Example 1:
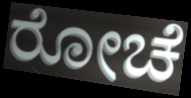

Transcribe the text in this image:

ರೋಚೆ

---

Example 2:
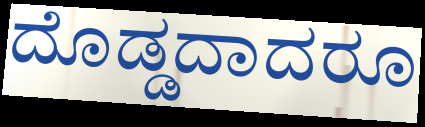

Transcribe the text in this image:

ದೊಡ್ಡದಾದರೂ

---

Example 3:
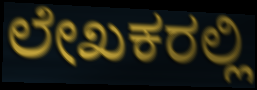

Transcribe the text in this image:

ಲೇಖಕರಲ್ಲಿ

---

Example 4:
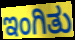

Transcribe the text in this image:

ಇಂಗಿತು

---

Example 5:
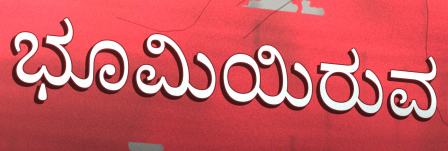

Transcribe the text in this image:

ಭೂಮಿಯಿರುವ